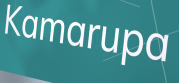
Kamarupa